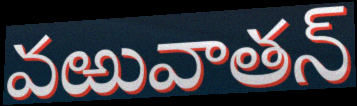
వఱువాతన్